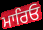
ਮਾਰਿਓ